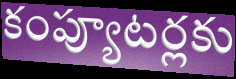
కంప్యూటర్లకు